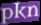
pkn